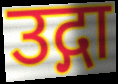
उद्गा